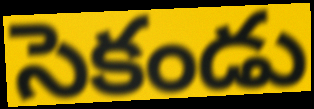
సెకండు